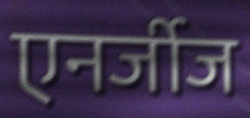
एनर्जीज